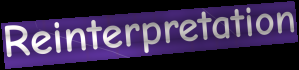
Reinterpretation